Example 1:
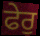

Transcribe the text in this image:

ਫੇਰੁ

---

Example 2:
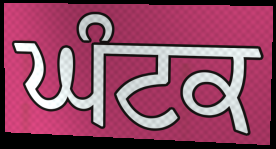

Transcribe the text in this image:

ਘੰਟਕ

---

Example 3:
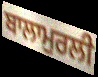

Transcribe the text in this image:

ਬਾਲਾਮੁਰਲੀ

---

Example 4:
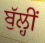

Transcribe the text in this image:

ਬੁੱਲ੍ਹੀਂ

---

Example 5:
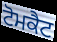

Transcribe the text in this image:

ਟੋਮਕੈਟ